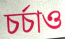
চর্চাও